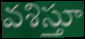
వశిస్తూ